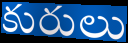
కురులు